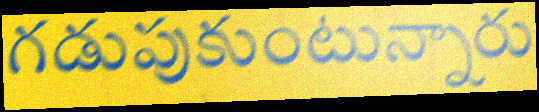
గడుపుకుంటున్నారు